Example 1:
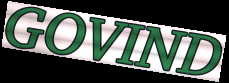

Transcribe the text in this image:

GOVIND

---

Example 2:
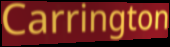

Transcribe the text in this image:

Carrington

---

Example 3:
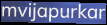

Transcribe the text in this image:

mvijapurkar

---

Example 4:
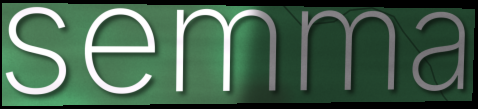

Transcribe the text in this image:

semma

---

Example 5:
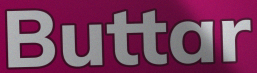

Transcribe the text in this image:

Buttar